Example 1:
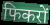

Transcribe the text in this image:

फिकरों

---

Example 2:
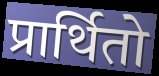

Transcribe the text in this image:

प्रार्थितो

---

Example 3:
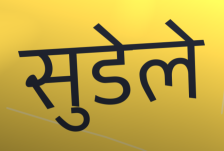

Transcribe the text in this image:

सुडेले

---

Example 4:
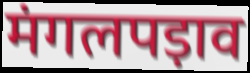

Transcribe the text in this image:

मंगलपड़ाव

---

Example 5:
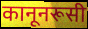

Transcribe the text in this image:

कानूनरूसी